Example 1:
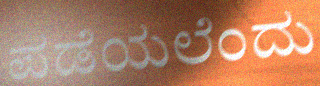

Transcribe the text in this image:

ಪಡೆಯಲೆಂದು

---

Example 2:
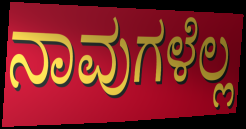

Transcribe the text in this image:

ನಾವುಗಳೆಲ್ಲ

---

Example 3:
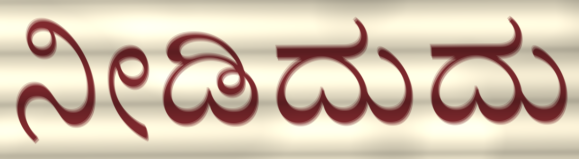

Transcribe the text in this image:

ನೀಡಿದುದು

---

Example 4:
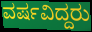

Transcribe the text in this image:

ವರ್ಷವಿದ್ದರು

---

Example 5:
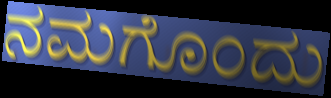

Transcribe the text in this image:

ನಮಗೊಂದು